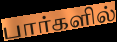
பார்களில்